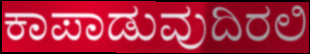
ಕಾಪಾಡುವುದಿರಲಿ